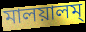
মালয়ালম্